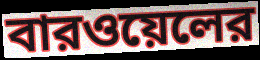
বারওয়েলের